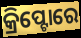
କ୍ରିପ୍ଟୋରେ